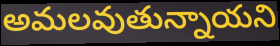
అమలవుతున్నాయని